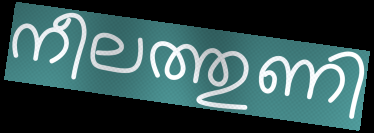
നീലത്തുണി